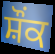
ਸ਼ੌੰਕ